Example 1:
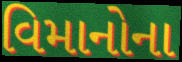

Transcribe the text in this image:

વિમાનોના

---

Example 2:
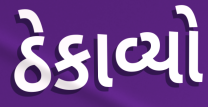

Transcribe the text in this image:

ઠેકાવ્યો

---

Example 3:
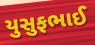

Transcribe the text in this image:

યુસુફભાઈ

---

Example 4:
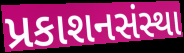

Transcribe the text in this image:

પ્રકાશનસંસ્થા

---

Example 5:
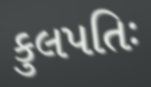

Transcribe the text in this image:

કુલપતિઃ